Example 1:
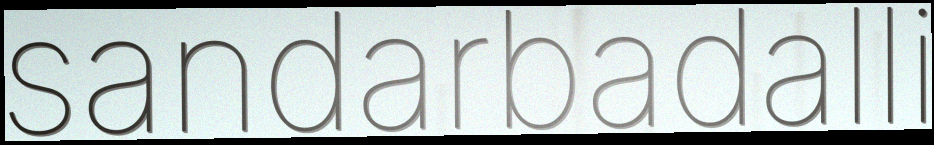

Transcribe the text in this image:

sandarbadalli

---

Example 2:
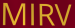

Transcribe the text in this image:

MIRV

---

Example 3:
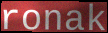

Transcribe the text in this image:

ronak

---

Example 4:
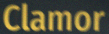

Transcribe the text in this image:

Clamor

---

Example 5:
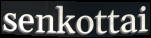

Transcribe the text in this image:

senkottai